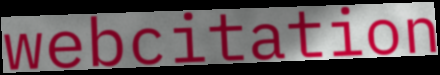
webcitation